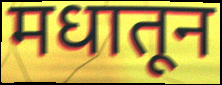
मधातून